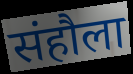
संहौला